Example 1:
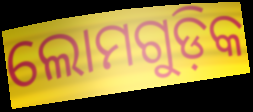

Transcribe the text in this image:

ଲୋମଗୁଡ଼ିକ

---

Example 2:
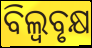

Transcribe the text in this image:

ବିଲ୍ୱବୃକ୍ଷ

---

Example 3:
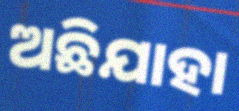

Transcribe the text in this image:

ଅଛିଯାହା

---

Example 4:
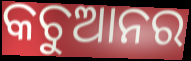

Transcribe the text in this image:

କଚୁଆନର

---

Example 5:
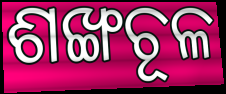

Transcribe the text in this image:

ଶଙ୍ଖଚୂଳ